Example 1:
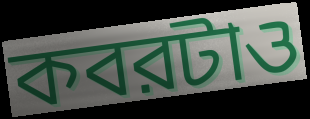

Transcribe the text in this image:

কবরটাও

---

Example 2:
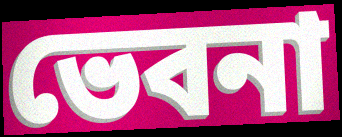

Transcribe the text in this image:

ভেবনা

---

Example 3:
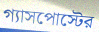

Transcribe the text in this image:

গ্যাসপোস্টের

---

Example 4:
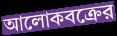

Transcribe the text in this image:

আলোকবক্রের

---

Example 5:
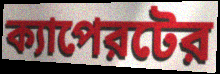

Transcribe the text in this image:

ক্যাপেরটের